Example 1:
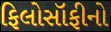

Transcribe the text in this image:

ફિલોસૉફીનો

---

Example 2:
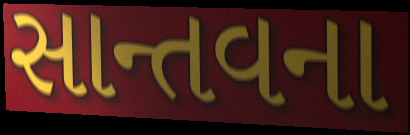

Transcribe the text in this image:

સાન્તવના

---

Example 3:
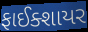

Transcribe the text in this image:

ફાઈક્શાયર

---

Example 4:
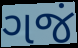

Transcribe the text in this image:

ગજં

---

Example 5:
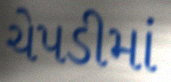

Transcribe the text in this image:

ચેપડીમાં